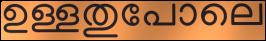
ഉള്ളതുപോലെ